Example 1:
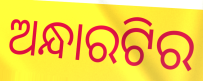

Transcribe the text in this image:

ଅନ୍ଧାରଟିର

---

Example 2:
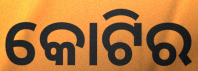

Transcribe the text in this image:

କୋଟିର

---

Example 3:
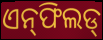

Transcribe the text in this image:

ଏନ୍‌ଫିଲଡ୍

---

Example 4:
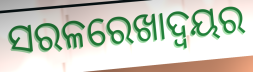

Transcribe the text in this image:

ସରଳରେଖାଦ୍ବୟର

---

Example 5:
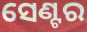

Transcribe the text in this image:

ସେଣ୍ଟର